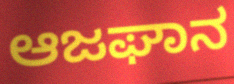
ಆಜಘಾನ